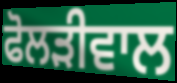
ਫੋਲੜੀਵਾਲ